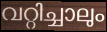
വറ്റിച്ചാലും